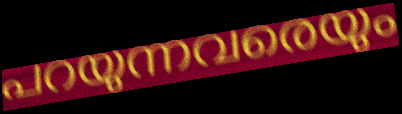
പറയുന്നവരെയും